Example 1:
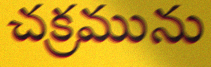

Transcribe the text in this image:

చక్రమును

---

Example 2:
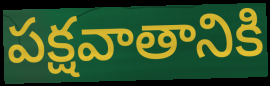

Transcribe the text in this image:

పక్షవాతానికి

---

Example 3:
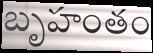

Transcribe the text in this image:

బృహంతం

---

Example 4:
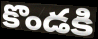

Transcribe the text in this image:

కొండకి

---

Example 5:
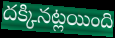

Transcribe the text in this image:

దక్కినట్లయింది